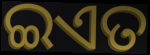
ଇଏତ